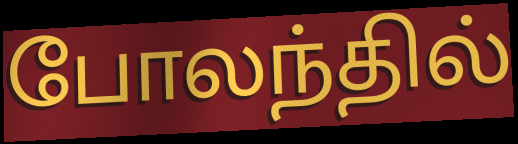
போலந்தில்